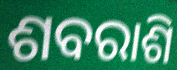
ଶବରାଶି